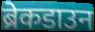
ब्रेकडाउन